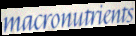
macronutrients